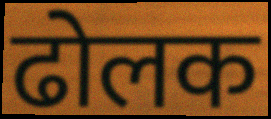
ढोलक